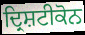
ਦ੍ਰਿਸ਼ਟੀਕੋਨ